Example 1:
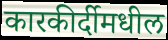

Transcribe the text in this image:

कारकीर्दीमधील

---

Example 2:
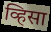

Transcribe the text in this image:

व्हिसा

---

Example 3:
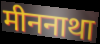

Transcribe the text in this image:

मीननाथा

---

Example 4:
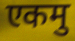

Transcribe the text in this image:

एकमु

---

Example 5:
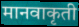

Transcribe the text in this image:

मानवाकृती